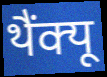
थैंक्यू